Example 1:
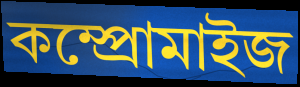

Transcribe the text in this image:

কম্প্রোমাইজ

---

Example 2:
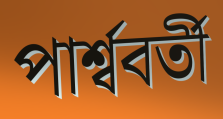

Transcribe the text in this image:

পার্শ্ববর্তী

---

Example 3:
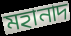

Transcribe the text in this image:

মহানাদ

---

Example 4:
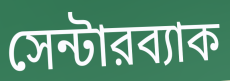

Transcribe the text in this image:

সেন্টারব্যাক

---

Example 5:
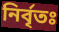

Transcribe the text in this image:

নির্বৃতঃ